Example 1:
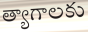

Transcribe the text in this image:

త్యాగాలకు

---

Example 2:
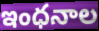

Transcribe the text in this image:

ఇంధనాల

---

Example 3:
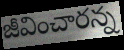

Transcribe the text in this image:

జీవించారన్న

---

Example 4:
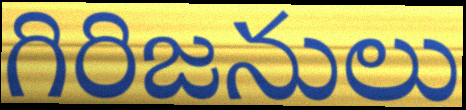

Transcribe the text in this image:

గిరిజనులు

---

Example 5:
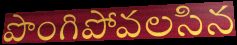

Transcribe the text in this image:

పొంగిపోవలసిన